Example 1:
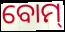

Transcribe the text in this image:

ବୋମ୍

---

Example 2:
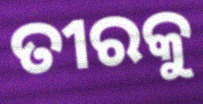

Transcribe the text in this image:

ତୀରକୁ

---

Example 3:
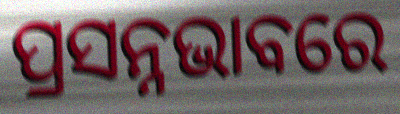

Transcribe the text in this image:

ପ୍ରସନ୍ନଭାବରେ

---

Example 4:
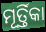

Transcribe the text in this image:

ମୂର୍ତ୍ତିକା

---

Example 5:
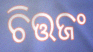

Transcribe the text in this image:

ଚିତ୍ତଜଂ